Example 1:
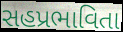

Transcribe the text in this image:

સહપ્રભાવિતા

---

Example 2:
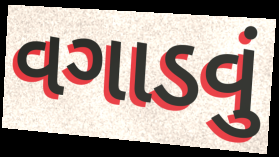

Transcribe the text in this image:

વગાડવું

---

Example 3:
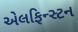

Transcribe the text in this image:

એલફિન્સ્ટન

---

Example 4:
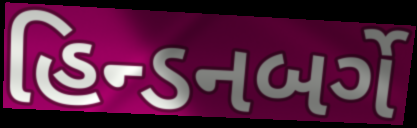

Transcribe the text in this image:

હિન્ડનબર્ગે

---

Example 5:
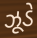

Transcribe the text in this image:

ઝૂડે